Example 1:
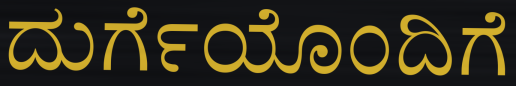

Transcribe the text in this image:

ದುರ್ಗೆಯೊಂದಿಗೆ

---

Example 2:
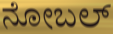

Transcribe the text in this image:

ನೋಬಲ್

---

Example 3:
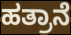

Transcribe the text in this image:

ಹತ್ರಾನೆ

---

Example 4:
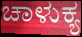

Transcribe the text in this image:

ಚಾಳುಕ್ಯ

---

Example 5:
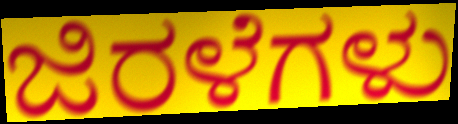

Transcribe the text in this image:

ಜಿರಳೆಗಳು